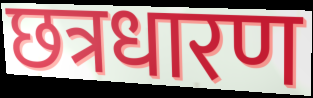
छत्रधारण